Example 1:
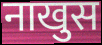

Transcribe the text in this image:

नाखुस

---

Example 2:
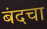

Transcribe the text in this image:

बंदचा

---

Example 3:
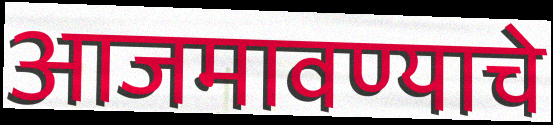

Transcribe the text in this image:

आजमावण्याचे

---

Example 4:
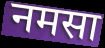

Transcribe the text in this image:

नमसा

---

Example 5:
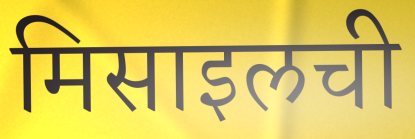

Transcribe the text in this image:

मिसाइलची